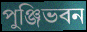
পুঞ্জিভবন